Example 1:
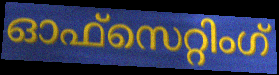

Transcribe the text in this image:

ഓഫ്സെറ്റിംഗ്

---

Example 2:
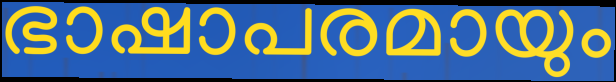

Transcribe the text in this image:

ഭാഷാപരമായും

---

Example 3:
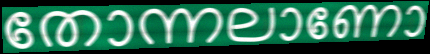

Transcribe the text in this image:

തോന്നലാണോ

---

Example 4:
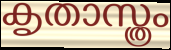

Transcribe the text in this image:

കൃതാസ്ത്രം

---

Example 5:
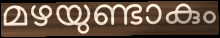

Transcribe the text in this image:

മഴയുണ്ടാകും